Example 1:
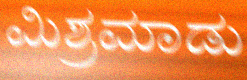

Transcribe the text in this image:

ಮಿಶ್ರಮಾಡು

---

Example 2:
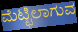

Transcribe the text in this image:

ಮೆಟ್ಟಿಲಾಗುವ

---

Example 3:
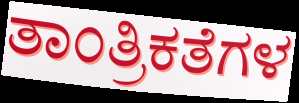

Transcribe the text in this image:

ತಾಂತ್ರಿಕತೆಗಳ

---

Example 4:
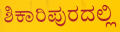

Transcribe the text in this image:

ಶಿಕಾರಿಪುರದಲ್ಲಿ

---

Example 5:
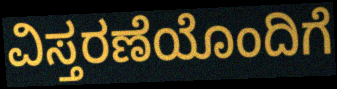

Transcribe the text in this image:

ವಿಸ್ತರಣೆಯೊಂದಿಗೆ